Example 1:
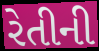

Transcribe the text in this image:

રેતીની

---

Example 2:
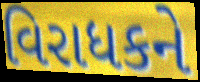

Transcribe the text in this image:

વિરાધકને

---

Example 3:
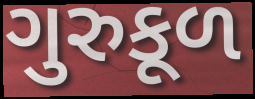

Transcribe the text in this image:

ગુરુકૂળ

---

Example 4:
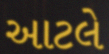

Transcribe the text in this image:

આટલે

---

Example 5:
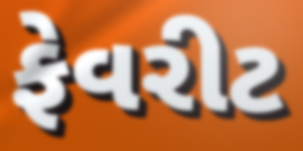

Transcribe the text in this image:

ફેવરીટ